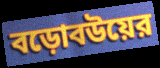
বড়োবউয়ের